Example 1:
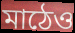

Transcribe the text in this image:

মাঠেও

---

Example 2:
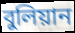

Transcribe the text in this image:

বুলিয়ান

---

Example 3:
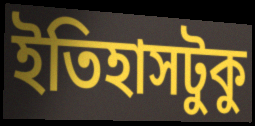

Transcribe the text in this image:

ইতিহাসটুকু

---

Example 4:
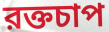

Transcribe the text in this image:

রক্তচাপ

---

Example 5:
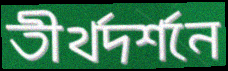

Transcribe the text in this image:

তীর্থদর্শনে